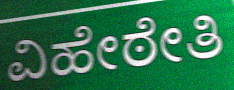
ವಿಹೇಠೇತಿ